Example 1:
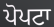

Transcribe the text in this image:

ਪੋਪਟਾ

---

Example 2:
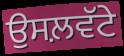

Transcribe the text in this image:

ਉਸਲ਼ਵੱਟੇ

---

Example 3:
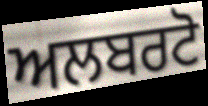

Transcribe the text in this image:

ਅਲਬਰਟੋ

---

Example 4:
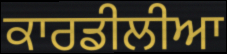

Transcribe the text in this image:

ਕਾਰਡੀਲੀਆ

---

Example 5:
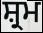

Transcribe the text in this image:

ਸ਼੍ਰਮ